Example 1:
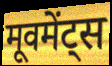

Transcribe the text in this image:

मूवमेंट्स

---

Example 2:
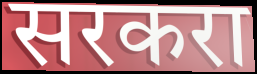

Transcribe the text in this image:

सरकरा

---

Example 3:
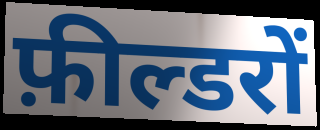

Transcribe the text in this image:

फ़ील्डरों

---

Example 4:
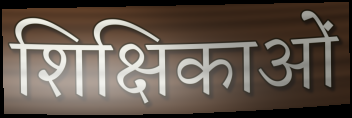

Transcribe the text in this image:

शिक्षिकाओं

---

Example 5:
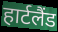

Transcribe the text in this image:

हार्टलैंड